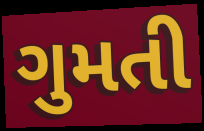
ગુમતી